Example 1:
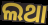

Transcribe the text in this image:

ଲଥା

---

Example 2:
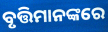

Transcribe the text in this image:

ବୃତ୍ତିମାନଙ୍କରେ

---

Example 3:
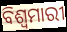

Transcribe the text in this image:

ବିଶ୍ୱମାରୀ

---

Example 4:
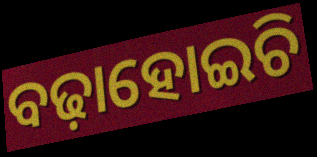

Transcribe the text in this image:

ବଢ଼ାହୋଇଚି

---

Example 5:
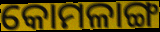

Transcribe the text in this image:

କୋମଳାଙ୍ଗ